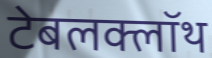
टेबलक्लॉथ